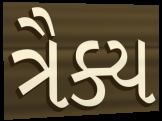
ત્રૈક્ય